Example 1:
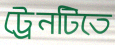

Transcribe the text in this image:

ট্রেনটিতে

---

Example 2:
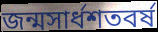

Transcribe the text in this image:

জন্মসার্ধশতবর্ষ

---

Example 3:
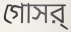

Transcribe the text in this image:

গোসর্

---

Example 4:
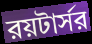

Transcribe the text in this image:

রয়টার্সর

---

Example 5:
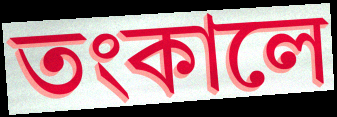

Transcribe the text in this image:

তংকালে